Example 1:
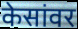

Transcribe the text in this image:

केसांवर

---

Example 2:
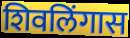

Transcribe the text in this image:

शिवलिंगास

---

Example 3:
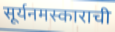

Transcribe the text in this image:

सूर्यनमस्काराची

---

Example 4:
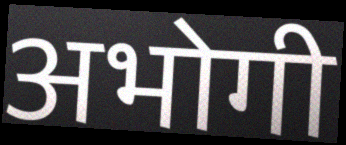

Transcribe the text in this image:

अभोगी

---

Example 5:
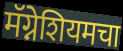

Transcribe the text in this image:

मॅग्नेशियमचा